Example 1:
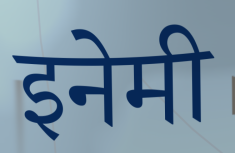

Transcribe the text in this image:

इनेमी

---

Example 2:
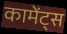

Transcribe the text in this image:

कामेंट्स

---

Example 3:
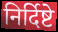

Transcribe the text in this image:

निर्दिष्टे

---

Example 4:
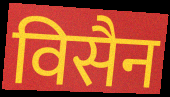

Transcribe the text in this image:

विसैन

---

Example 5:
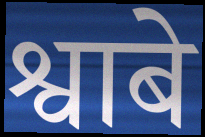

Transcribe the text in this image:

श्वाबे